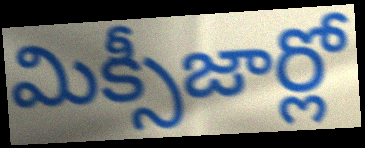
మిక్సీజార్లో